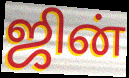
ஜின்